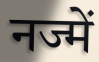
नज्में